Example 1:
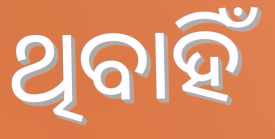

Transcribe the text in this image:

ଥିବାହିଁ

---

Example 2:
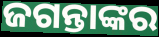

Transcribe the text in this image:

ଜଗନ୍ତାଙ୍କର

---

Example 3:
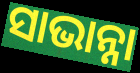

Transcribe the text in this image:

ସାଭାନ୍ନା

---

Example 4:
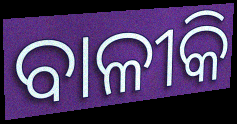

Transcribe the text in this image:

ବାଳୀକି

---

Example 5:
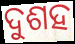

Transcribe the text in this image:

ଦୁଶହ